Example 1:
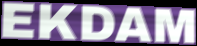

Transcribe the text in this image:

EKDAM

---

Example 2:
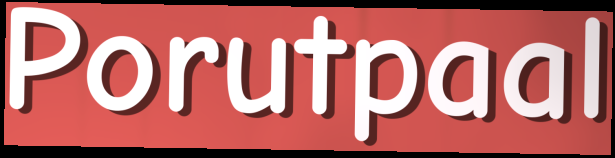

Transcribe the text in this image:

Porutpaal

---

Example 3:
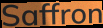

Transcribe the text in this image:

Saffron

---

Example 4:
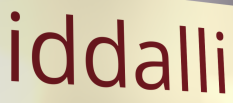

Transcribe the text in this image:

iddalli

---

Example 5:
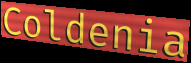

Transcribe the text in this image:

Coldenia